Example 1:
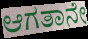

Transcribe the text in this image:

ಆಗತಾನೇ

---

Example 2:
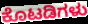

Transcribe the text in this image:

ಕೊಟಡಿಗಳು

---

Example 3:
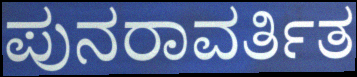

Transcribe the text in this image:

ಪುನರಾವರ್ತಿತ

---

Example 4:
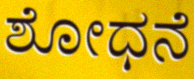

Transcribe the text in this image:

ಶೋಧನೆ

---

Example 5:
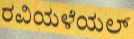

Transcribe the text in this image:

ರವಿಯಳೆಯಲ್